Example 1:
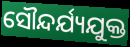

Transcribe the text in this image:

ସୌନ୍ଦର୍ଯ୍ୟଯୁକ୍ତ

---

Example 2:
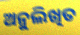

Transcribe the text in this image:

ଅନୁଲିଖିତ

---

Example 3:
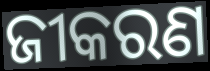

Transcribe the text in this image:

ଜୀକରଣ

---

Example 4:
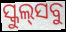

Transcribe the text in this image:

ସ୍କୁଲ୍‍ସବୁ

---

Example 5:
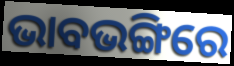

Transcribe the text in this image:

ଭାବଭଙ୍ଗିରେ